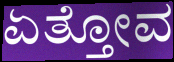
ಏತ್ತೋವ